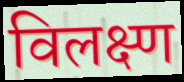
विलक्ष्ण